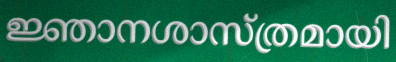
ജ്ഞാനശാസ്ത്രമായി